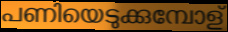
പണിയെടുക്കുമ്പോള്